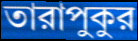
তারাপুকুর